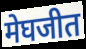
मेघजीत